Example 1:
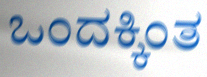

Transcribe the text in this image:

ಒಂದಕ್ಕಿಂತ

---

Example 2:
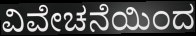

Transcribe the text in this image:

ವಿವೇಚನೆಯಿಂದ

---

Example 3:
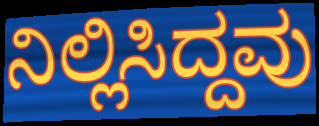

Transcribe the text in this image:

ನಿಲ್ಲಿಸಿದ್ದವು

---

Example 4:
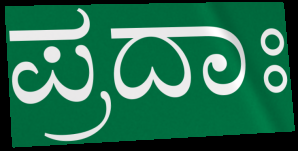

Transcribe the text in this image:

ಪ್ರದಾಃ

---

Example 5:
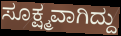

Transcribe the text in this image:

ಸೂಕ್ಷ್ಮವಾಗಿದ್ದು